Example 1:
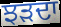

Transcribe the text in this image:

ਝੜਦਾ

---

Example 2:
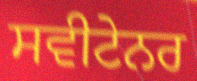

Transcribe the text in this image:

ਸਵੀਟੇਨਰ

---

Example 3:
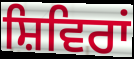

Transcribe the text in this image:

ਸ਼ਿਵਿਰਾਂ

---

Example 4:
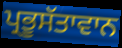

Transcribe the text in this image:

ਪ੍ਰਭੂਸੱਤਾਵਾਨ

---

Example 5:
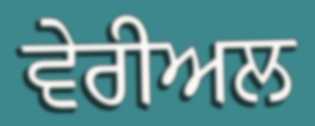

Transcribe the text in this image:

ਵੇਰੀਅਲ